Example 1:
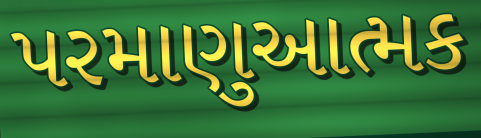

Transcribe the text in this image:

પરમાણુઆત્મક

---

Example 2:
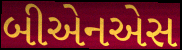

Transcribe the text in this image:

બીએનએસ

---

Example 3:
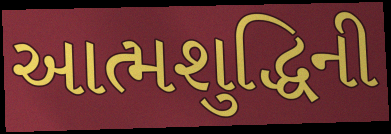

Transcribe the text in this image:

આત્મશુદ્ધિની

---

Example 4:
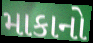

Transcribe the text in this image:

માકાનો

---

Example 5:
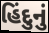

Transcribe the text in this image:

હિંદુનું